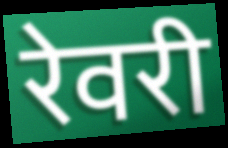
रेवरी